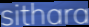
sithara